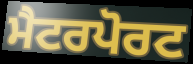
ਮੈਟਰਪੋਰਟ